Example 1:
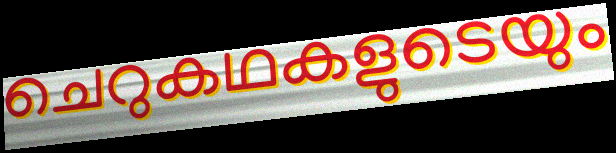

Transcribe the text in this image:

ചെറുകഥകളുടെയും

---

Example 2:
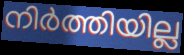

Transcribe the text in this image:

നിർത്തിയില്ല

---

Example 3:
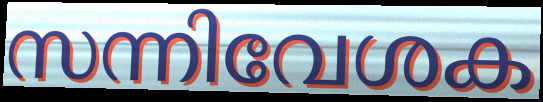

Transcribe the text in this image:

സന്നിവേശക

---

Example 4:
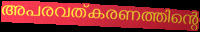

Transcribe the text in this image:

അപരവത്കരണത്തിന്റെ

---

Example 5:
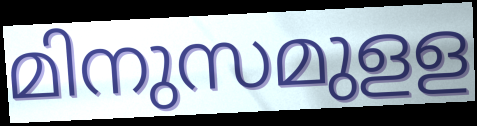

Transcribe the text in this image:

മിനുസമുളള